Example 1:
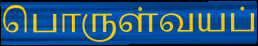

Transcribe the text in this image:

பொருள்வயப்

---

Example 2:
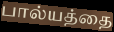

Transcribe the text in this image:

பால்யத்தை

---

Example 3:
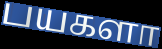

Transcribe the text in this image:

பயகளா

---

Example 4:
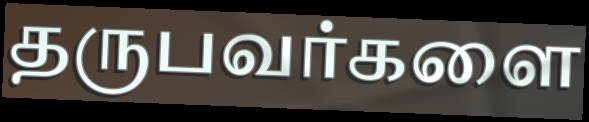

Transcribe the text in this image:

தருபவர்களை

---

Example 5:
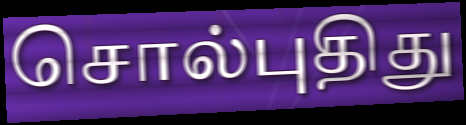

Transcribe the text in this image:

சொல்புதிது